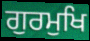
ਗੁਰਮੁਖਿ